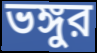
ভঙ্গুর